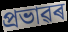
প্ৰভাৱৰ